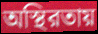
অস্থিরতায়